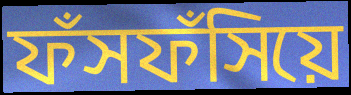
ফঁসফঁসিয়ে